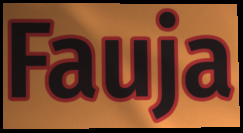
Fauja